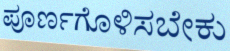
ಪೂರ್ಣಗೊಳಿಸಬೇಕು